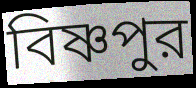
বিষ্ণপুর